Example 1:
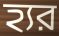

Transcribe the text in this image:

হ্যর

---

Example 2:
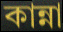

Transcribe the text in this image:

কান্না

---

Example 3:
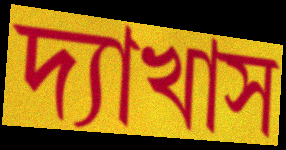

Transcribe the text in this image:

দ্যাখাস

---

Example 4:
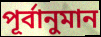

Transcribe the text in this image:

পূর্বানুমান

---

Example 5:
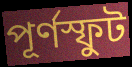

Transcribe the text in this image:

পূর্ণস্ফুট